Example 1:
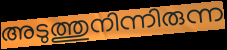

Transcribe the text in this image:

അടുത്തുനിന്നിരുന്ന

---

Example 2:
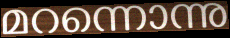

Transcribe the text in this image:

മറന്നൊന്നു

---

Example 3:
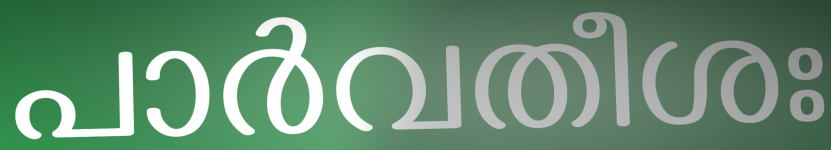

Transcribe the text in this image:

പാർവതീശഃ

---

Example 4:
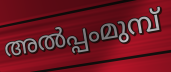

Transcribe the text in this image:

അൽപ്പംമുമ്പ്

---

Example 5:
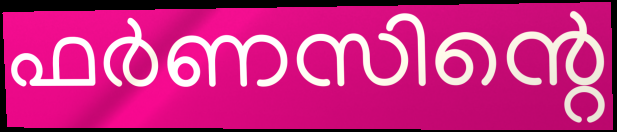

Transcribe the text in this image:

ഫർണസിന്റെ